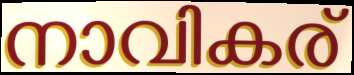
നാവികര്